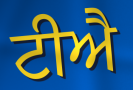
ਟੀਐ